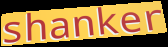
shanker